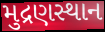
મુદ્રણસ્થાન